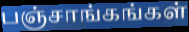
பஞ்சாங்கங்கள்